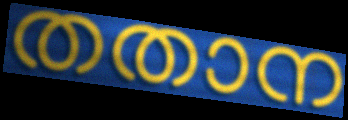
തതാന